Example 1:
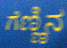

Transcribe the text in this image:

ಗೆಣ್ಣಿನ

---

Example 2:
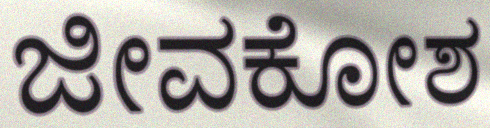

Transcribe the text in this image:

ಜೀವಕೋಶ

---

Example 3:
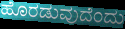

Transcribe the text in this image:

ಹೊರಡುವುದೆಂದು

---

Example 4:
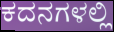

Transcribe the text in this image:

ಕದನಗಳಲ್ಲಿ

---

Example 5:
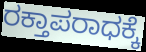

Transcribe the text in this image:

ರಕ್ತಾಪರಾಧಕ್ಕೆ